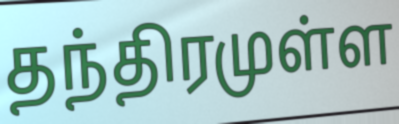
தந்திரமுள்ள